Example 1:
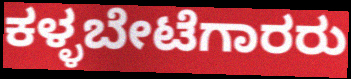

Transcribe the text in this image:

ಕಳ್ಳಬೇಟೆಗಾರರು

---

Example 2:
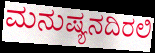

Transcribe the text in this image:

ಮನುಷ್ಯನದಿರಲಿ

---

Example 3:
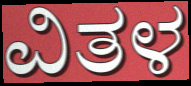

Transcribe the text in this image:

ವಿತಳ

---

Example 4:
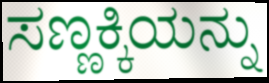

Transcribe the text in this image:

ಸಣ್ಣಕ್ಕಿಯನ್ನು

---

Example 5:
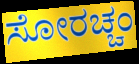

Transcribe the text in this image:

ಸೋರಚ್ಚಂ